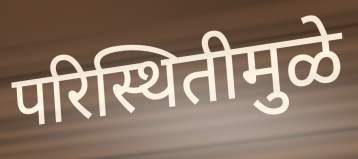
परिस्थितीमुळे